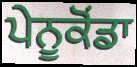
ਪੇਨੂਕੋਂਡਾ